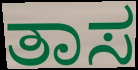
ತಾಸ